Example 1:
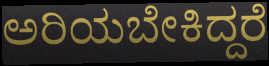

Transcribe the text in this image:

ಅರಿಯಬೇಕಿದ್ದರೆ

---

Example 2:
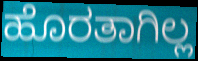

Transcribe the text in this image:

ಹೊರತಾಗಿಲ್ಲ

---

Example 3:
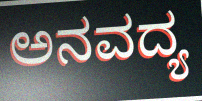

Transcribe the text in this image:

ಅನವದ್ಯ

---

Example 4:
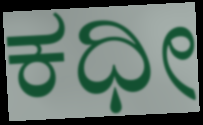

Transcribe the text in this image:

ಕಧೀ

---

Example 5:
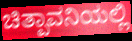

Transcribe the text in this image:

ಚಿತ್ಪಾವನಿಯಲ್ಲಿ